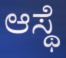
ಆಸ್ಥೆ